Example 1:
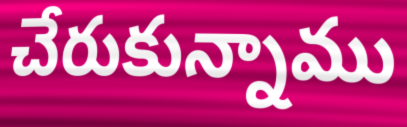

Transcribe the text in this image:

చేరుకున్నాము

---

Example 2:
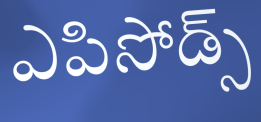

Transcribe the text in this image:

ఎపిసోడ్స్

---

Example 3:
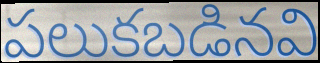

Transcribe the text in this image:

పలుకబడినవి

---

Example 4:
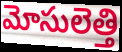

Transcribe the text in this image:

మోసులెత్తి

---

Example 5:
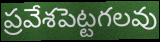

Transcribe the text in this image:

ప్రవేశపెట్టగలవు